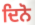
ਦਿਨੋ